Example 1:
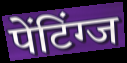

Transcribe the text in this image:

पेंटिंग्ज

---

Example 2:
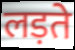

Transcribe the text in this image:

लड़ते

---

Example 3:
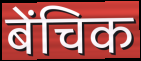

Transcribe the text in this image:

बेंचिक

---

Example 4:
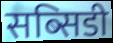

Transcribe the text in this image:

सब्सिडी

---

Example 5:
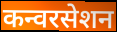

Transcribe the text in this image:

कन्वरसेशन